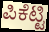
ಪಿಕೆಟ್ಟಿ